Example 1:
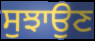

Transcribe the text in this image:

ਸੁਝਾਉਣ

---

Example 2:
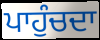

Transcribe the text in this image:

ਪਾਹੁੰਚਦਾ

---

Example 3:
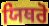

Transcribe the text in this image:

ਯਿਥਰੋ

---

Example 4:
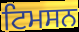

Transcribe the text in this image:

ਟਿਮਸਨ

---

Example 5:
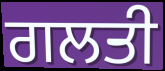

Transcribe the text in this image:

ਗਲਤੀ